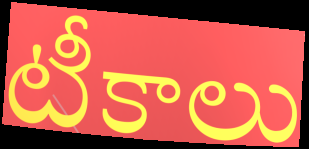
టీకాలు